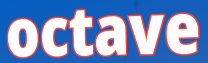
octave